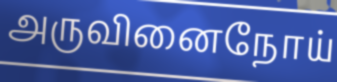
அருவினைநோய்